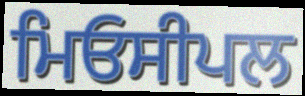
ਮਿਓਸੀਪਲ